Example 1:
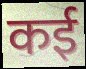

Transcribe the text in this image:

कई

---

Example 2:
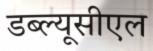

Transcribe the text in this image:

डब्ल्यूसीएल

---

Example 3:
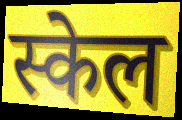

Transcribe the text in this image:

स्केल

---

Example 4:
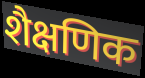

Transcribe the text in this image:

शैक्षणिक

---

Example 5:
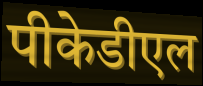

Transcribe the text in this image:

पीकेडीएल